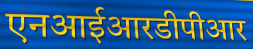
एनआईआरडीपीआर